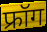
फ्रॉग